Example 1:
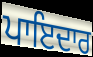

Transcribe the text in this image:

ਪਾਇਦਾਰ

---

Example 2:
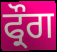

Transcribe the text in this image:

ਫ੍ਰੌਗ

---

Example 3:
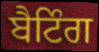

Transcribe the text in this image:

ਬੈਟਿੰਗ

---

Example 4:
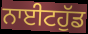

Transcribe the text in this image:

ਨਾਈਟਹੁੱਡ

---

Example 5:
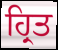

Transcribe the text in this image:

ਹ੍ਰਿਤ